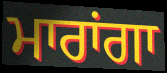
ਮਾਰਾਂਗਾ